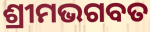
ଶ୍ରୀମଭଗବତ